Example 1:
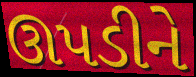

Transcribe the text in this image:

ઊપડીને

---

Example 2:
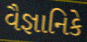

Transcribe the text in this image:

વૈજ્ઞાનિકે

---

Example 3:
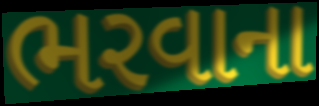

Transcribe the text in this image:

ભરવાના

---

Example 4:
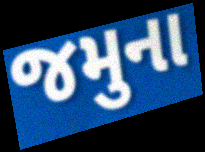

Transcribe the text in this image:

જમુના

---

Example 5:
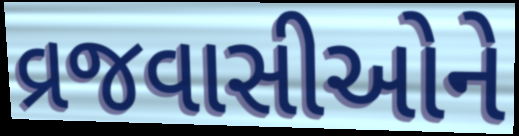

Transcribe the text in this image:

વ્રજવાસીઓને